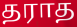
தராத